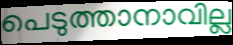
പെടുത്താനാവില്ല